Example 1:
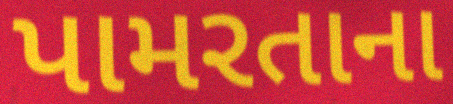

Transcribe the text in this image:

પામરતાના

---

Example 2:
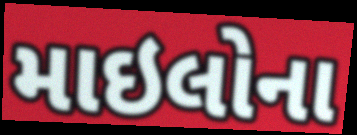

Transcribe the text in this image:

માઇલોના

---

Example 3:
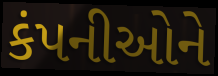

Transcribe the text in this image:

કંપનીઓને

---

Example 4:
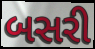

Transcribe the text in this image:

બસરી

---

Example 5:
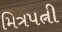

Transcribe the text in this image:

મિત્રપત્ની